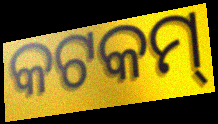
କଟକମ୍